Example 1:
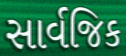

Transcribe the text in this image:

સાર્વજિક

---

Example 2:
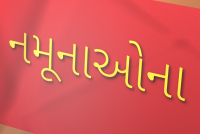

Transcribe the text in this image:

નમૂનાઓના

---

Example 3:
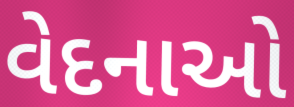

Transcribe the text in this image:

વેદનાઓ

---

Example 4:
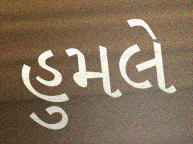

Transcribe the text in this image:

હુમલે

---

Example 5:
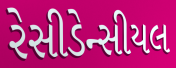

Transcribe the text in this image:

રેસીડેન્સીયલ